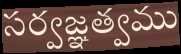
సర్వజ్ఞత్వము